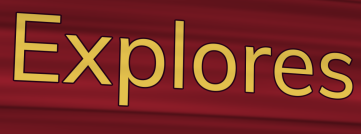
Explores